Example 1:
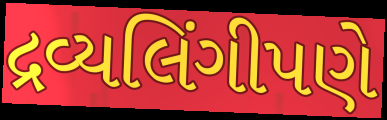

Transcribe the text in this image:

દ્રવ્યલિંગીપણે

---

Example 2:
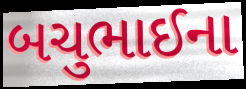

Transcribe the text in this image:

બચુભાઈના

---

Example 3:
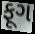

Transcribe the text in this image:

ફૂગ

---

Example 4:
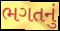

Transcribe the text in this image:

ભગતનું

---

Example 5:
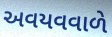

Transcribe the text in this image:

અવયવવાળે